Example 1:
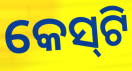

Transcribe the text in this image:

କେସ୍‌ଟି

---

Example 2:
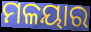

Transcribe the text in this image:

ମଳୟାର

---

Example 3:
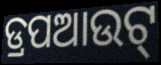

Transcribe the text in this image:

ଡ୍ରପଆଉଟ୍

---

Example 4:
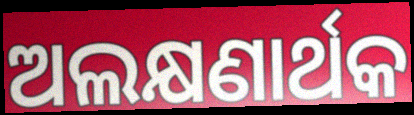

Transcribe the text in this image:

ଅଲକ୍ଷଣାର୍ଥକ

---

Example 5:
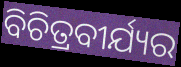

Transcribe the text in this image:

ବିଚିତ୍ରବୀର୍ଯ୍ୟର